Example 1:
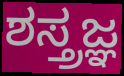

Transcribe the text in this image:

ಶಸ್ತ್ರಜ್ಞ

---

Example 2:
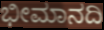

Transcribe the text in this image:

ಭೀಮಾನದಿ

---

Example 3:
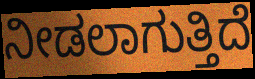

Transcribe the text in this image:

ನೀಡಲಾಗುತ್ತಿದೆ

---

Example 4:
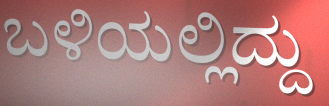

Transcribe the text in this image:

ಬಳಿಯಲ್ಲಿದ್ದು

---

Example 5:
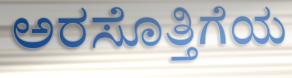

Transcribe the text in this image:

ಅರಸೊತ್ತಿಗೆಯ